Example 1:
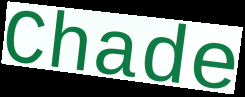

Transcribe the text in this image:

Chade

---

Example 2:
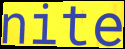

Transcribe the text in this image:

nite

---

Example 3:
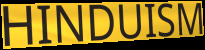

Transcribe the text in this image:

HINDUISM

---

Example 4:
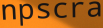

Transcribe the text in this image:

npscra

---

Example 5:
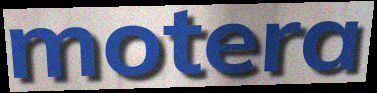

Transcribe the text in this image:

motera